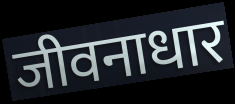
जीवनाधार